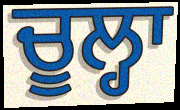
ਚੂਲ੍ਹਾ